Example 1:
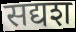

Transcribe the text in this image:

सद्यश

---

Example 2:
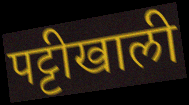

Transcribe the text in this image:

पट्टीखाली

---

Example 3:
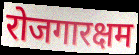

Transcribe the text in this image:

रोजगारक्षम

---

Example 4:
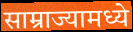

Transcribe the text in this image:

साम्राज्यामध्ये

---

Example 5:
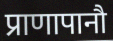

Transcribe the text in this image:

प्राणापानौ